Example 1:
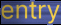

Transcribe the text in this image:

entry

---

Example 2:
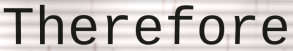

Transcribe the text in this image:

Therefore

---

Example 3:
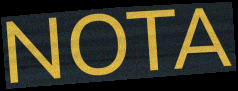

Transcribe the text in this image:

NOTA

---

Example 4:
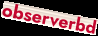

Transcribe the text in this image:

observerbd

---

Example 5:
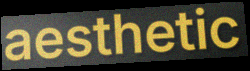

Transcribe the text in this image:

aesthetic